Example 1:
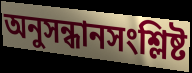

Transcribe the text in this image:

অনুসন্ধানসংশ্লিষ্ট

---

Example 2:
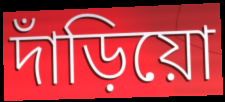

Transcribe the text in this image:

দাঁড়িয়ো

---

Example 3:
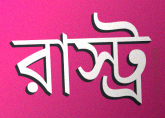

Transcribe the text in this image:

রাস্ট্র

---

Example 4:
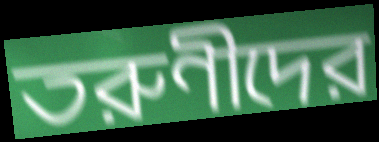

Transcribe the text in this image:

তরুণীদের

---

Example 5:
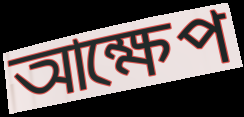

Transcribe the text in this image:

আক্ষেপ